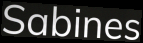
Sabines